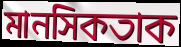
মানসিকতাক